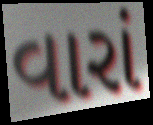
વારાં